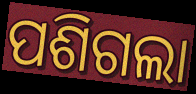
ପଶିଗଲା